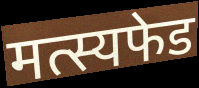
मत्स्यफेड